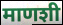
माणशी